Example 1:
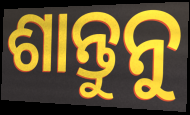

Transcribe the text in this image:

ଶାନ୍ତୁନୁ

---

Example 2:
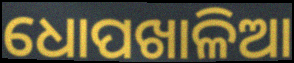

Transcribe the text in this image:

ଧୋପଖାଳିଆ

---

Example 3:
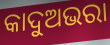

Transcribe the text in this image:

କାଦୁଅଭରା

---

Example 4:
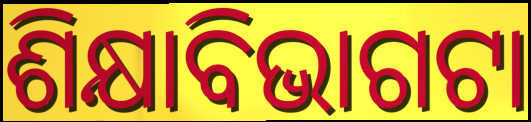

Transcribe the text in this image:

ଶିକ୍ଷାବିଭାଗଟା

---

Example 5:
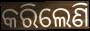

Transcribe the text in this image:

କରିଲେଣି